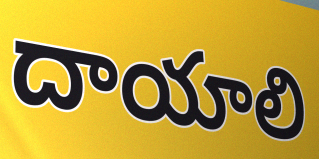
దాయాలి